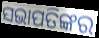
ସଭାପତିଙ୍କର